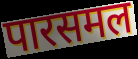
पारसमल